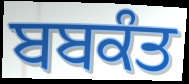
ਬਬਕੰਤ